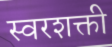
स्वरशक्ती